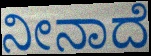
ನೀನಾದೆ